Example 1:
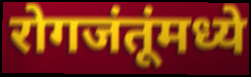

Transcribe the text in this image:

रोगजंतूंमध्ये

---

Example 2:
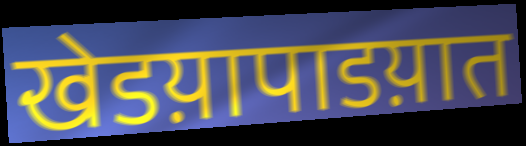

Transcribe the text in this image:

खेडय़ापाडय़ात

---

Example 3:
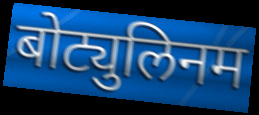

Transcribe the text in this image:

बोट्युलिनम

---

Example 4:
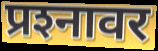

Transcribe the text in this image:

प्रश्‍नावर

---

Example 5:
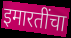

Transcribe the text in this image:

इमारतींचा